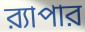
র‍্যাপার